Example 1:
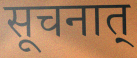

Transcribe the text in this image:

सूचनात्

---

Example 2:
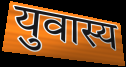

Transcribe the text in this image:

युवास्य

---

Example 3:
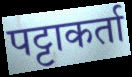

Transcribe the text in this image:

पट्टाकर्ता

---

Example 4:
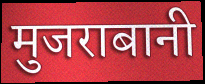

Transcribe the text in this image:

मुजराबानी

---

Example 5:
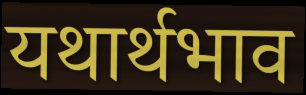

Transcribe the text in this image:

यथार्थभाव